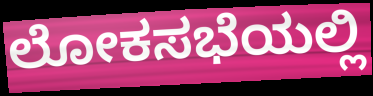
ಲೋಕಸಭೆಯಲ್ಲಿ